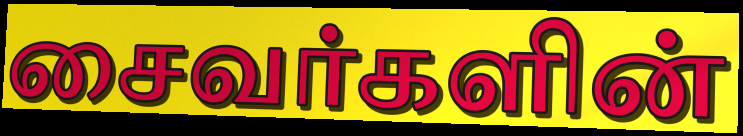
சைவர்களின்